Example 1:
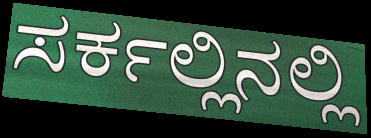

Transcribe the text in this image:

ಸರ್ಕಲ್ಲಿನಲ್ಲಿ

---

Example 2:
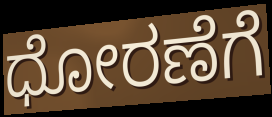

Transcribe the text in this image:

ಧೋರಣೆಗೆ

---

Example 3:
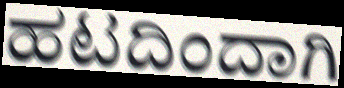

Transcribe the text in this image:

ಹಟದಿಂದಾಗಿ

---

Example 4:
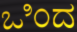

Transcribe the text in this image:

ಒಿಂದ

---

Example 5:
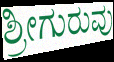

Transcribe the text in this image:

ಶ್ರೀಗುರುವು